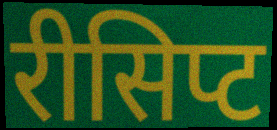
रीसिप्ट